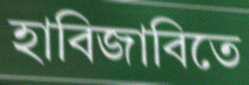
হাবিজাবিতে